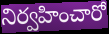
నిర్వహించారో